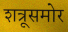
शत्रूसमोर